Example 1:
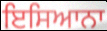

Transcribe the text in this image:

ਇਸਿਆਨਾ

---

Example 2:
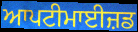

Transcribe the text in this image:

ਆਪਟੀਮਾਈਜ਼ਡ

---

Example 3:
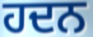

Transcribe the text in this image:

ਹਦਨ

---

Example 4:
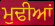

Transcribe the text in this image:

ਮੁਢੀਆਂ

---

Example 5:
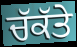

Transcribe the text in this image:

ਚੱਕੱਤੇ